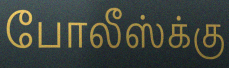
போலீஸ்க்கு